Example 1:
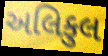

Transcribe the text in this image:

અલિકુલ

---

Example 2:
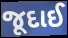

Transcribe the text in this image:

જૂદાઈ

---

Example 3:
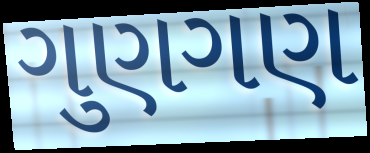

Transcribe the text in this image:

ગુણગણ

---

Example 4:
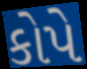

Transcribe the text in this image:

કોપે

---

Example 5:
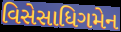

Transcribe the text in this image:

વિસેસાધિગમેન